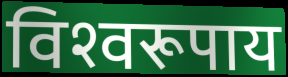
विश्वरूपाय